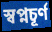
স্বপ্নচূর্ণ